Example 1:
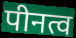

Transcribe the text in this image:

पीनत्व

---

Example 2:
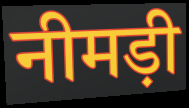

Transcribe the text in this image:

नीमड़ी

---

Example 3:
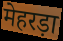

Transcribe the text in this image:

मेहरड़ा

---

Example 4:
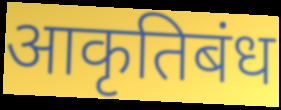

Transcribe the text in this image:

आकृतिबंध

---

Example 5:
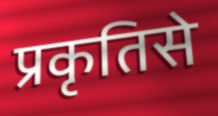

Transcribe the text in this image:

प्रकृतिसे